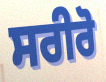
ਸਰੀਰੋ